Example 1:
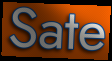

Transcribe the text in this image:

Sate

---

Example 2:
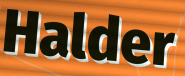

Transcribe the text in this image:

Halder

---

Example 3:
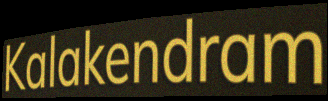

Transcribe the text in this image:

Kalakendram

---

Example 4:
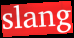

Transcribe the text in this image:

slang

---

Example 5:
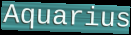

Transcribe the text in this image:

Aquarius